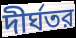
দীর্ঘতর